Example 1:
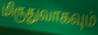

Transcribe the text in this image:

மிருதுவாகவும்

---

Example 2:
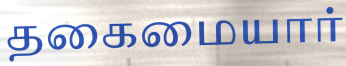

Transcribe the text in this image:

தகைமையார்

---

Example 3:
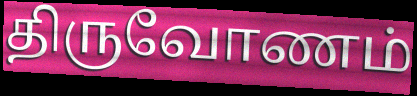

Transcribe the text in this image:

திருவோணம்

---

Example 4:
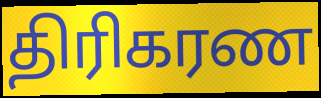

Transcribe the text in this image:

திரிகரண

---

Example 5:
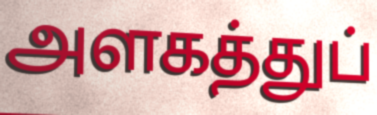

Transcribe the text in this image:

அளகத்துப்